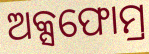
ଅକ୍ସଫୋମ୍ର